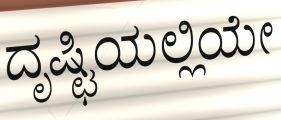
ದೃಷ್ಟಿಯಲ್ಲಿಯೇ